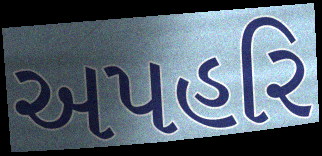
અપહરિ